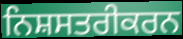
ਨਿਸ਼ਸਤਰੀਕਰਨ